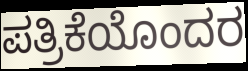
ಪತ್ರಿಕೆಯೊಂದರ